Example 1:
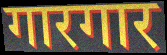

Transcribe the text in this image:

गारगार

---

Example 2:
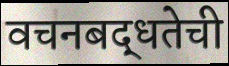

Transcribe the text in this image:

वचनबद्धतेची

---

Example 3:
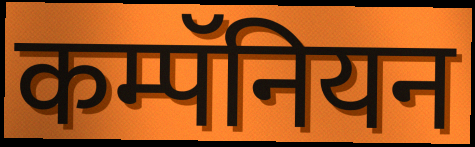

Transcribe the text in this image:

कम्पॅनियन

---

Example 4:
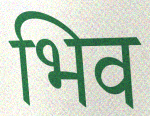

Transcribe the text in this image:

भिव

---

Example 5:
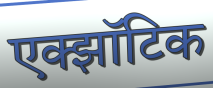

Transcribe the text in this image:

एक्झॉटिक